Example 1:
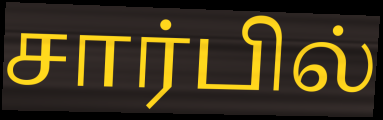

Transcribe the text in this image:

சார்பில்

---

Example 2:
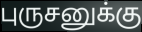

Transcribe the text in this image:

புருசனுக்கு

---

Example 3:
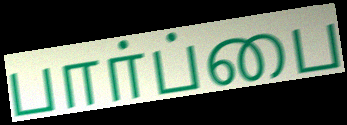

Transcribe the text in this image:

பார்ப்பை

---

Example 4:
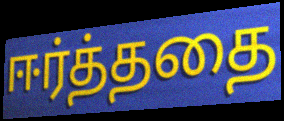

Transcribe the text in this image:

ஈர்த்ததை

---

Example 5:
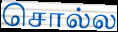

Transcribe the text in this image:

சொல்ல